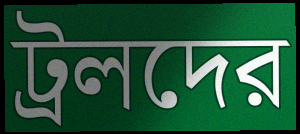
ট্রলদের